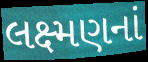
લક્ષ્મણનાં